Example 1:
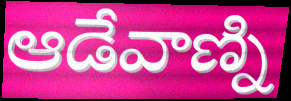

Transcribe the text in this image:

ఆడేవాణ్ని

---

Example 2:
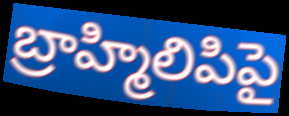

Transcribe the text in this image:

బ్రాహ్మిలిపిపై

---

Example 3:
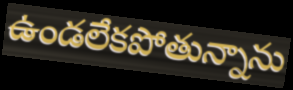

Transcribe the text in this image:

ఉండలేకపోతున్నాను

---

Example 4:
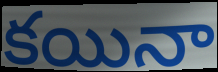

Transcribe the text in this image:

కయినా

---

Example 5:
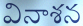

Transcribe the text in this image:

వినాశన